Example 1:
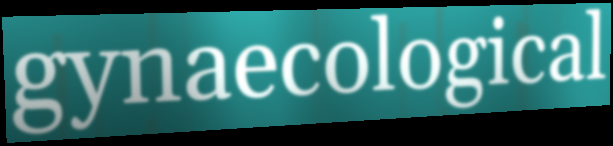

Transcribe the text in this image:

gynaecological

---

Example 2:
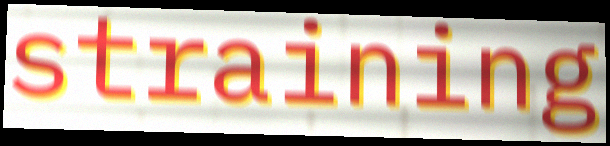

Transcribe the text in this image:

straining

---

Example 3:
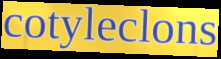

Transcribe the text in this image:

cotyleclons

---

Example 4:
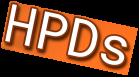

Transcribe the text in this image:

HPDs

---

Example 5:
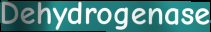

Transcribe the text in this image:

Dehydrogenase